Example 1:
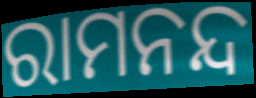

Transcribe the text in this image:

ରାମନନ୍ଦ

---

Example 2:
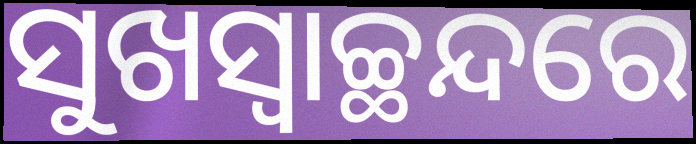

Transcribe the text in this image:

ସୁଖସ୍ୱାଚ୍ଛନ୍ଦରେ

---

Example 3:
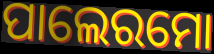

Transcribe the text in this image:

ପାଲେରମୋ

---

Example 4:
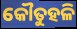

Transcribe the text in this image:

କୌତୁହଳି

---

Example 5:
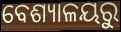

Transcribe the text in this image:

ବେଶ୍ୟାଳୟରୁ